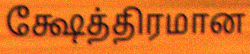
க்ஷேத்திரமான